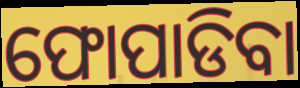
ଫୋପାଡିବା